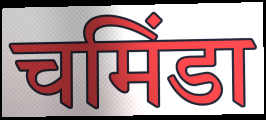
चमिंडा